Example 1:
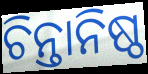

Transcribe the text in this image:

ଚିନ୍ତାନିଷ୍ଠ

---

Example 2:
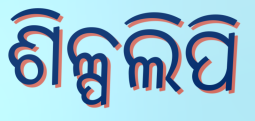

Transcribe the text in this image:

ଶିଳ୍ପଲିପି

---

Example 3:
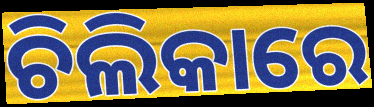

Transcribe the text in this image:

ଚିଲିକାରେ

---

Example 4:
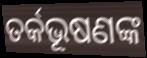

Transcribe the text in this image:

ତର୍କଭୂଷଣଙ୍କ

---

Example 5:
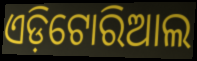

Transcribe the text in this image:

ଏଡ଼ିଟୋରିଆଲ